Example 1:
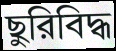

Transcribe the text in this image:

ছুরিবিদ্ধ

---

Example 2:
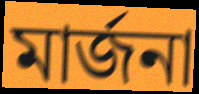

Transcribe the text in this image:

মার্জনা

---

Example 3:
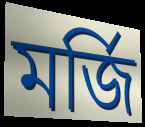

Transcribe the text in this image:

মর্জি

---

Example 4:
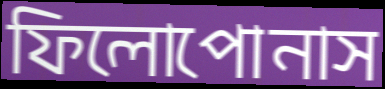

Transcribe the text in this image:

ফিলোপোনাস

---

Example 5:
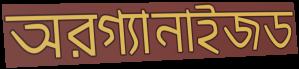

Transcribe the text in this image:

অরগ্যানাইজড